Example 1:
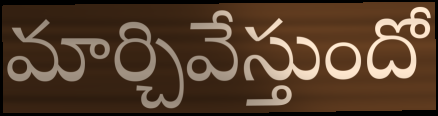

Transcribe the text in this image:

మార్చివేస్తుందో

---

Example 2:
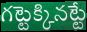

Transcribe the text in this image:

గట్టెక్కినట్టే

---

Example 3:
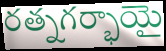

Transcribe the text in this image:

రత్నగర్భాయై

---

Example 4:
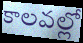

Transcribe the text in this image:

కాలవల్లో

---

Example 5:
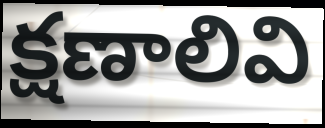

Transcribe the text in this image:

క్షణాలివి